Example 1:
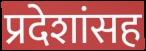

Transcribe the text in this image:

प्रदेशांसह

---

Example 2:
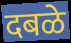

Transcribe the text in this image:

दबळे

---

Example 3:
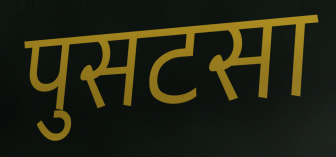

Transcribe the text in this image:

पुसटसा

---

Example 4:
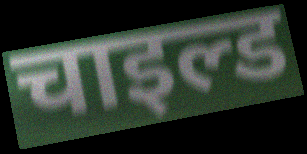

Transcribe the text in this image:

चाइल्ड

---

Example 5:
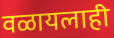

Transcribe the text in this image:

वळायलाही